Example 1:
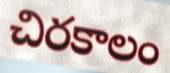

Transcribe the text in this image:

చిరకాలం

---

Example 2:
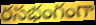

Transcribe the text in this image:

రసభంగంగా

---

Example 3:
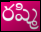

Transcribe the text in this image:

రష్మి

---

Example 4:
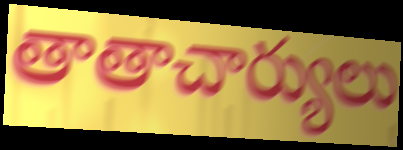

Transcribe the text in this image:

తాతాచార్యులు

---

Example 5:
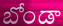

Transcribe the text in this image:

బోండా